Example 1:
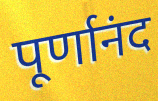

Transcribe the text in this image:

पूर्णानंद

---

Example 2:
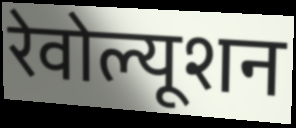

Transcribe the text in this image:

रेवोल्यूशन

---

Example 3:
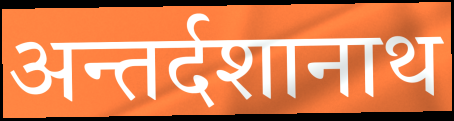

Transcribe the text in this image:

अन्तर्दशानाथ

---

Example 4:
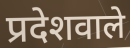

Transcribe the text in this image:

प्रदेशवाले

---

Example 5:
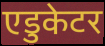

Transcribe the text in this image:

एडुकेटर